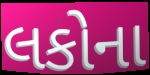
લકોના